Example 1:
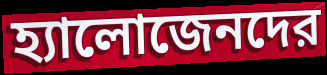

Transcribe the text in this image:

হ্যালোজেনদের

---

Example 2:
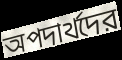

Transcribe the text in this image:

অপদার্থদের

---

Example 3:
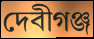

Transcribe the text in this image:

দেবীগঞ্জ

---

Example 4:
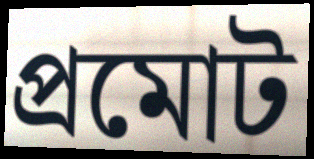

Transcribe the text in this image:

প্রমোট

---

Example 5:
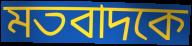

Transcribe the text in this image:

মতবাদকে